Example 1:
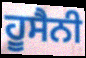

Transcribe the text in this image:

ਹੂਸੈਨੀ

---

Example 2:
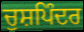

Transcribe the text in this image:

ਚੁਸ਼ਪਿੰਦਰ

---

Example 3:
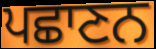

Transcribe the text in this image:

ਪਛਾਣਨ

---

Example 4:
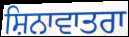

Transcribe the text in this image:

ਸ਼ਿਨਾਵਾਤਰਾ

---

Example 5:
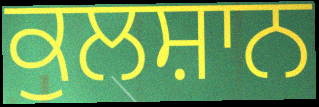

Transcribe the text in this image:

ਕੁਲਸ਼ਾਨ